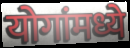
योगांमध्ये